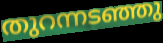
തുറന്നടഞ്ഞു